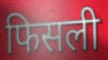
फिसली